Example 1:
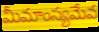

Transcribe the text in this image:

మీమాంస్యమేవ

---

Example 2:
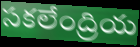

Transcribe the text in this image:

సకలేంద్రియ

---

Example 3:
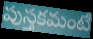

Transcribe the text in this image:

పుస్తకమంటే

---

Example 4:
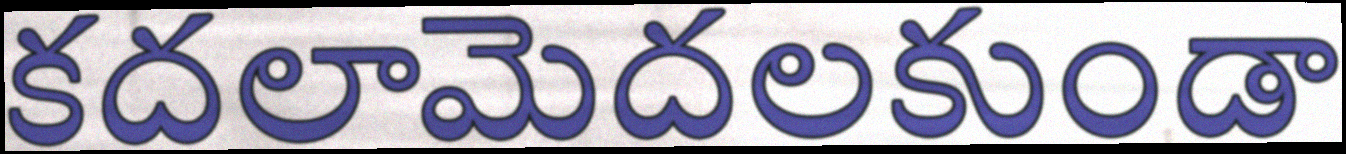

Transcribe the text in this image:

కదలామెదలకుండా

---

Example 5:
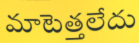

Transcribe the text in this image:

మాటెత్తలేదు